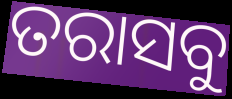
ତରାସବୁ